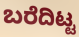
ಬರೆದಿಟ್ಟ